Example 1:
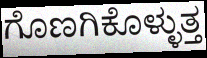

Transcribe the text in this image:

ಗೊಣಗಿಕೊಳ್ಳುತ್ತ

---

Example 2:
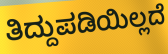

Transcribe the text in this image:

ತಿದ್ದುಪಡಿಯಿಲ್ಲದೆ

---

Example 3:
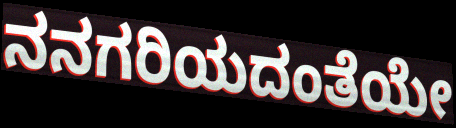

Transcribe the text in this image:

ನನಗರಿಯದಂತೆಯೇ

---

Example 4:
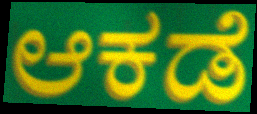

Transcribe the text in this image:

ಆಕಡೆ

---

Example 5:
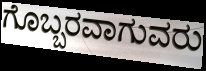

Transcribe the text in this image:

ಗೊಬ್ಬರವಾಗುವರು